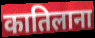
कातिलाना